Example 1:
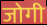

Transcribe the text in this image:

जोगी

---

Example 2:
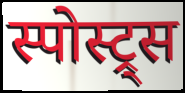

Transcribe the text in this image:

स्पोस्ट्र्स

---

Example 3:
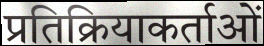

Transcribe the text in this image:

प्रतिक्रियाकर्ताओं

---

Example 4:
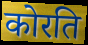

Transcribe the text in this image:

कोरति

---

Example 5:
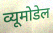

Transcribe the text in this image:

व्यूमोडेल